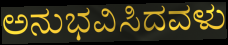
ಅನುಭವಿಸಿದವಳು